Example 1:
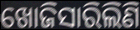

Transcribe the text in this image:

ଖୋଜିସାରିଲିଣି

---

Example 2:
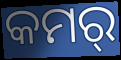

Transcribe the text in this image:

କମର୍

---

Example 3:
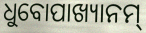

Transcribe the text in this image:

ଧୁବୋପାଖ୍ୟାନମ୍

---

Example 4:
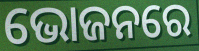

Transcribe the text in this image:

ଭୋଜନରେ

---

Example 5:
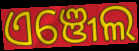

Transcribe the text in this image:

ଏଞ୍ଜେଲ